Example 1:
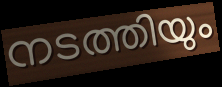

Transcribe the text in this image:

നടത്തിയും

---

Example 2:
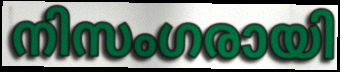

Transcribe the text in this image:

നിസംഗരായി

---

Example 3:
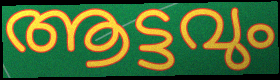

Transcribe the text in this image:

ആട്ടവും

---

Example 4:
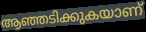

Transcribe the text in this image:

ആഞ്ഞടിക്കുകയാണ്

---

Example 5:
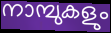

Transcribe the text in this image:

നാമ്പുകളും